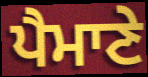
ਪੈਮਾਣੇ